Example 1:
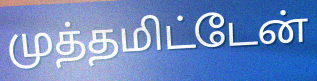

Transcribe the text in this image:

முத்தமிட்டேன்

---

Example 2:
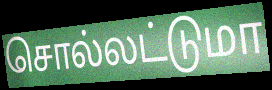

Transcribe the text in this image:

சொல்லட்டுமா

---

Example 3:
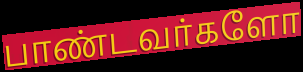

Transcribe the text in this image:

பாண்டவர்களோ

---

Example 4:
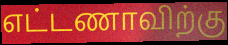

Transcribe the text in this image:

எட்டணாவிற்கு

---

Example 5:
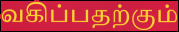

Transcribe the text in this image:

வகிப்பதற்கும்